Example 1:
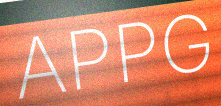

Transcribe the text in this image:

APPG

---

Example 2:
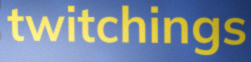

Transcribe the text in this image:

twitchings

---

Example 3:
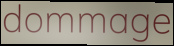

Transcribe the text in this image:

dommage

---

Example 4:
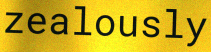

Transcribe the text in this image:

zealously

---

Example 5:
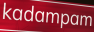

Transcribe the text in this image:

kadampam